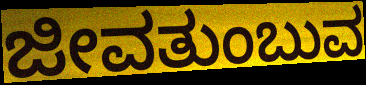
ಜೀವತುಂಬುವ